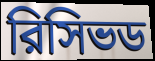
রিসিভড